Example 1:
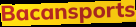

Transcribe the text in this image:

Bacansports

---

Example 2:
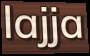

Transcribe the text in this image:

lajja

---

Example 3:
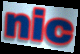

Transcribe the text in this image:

nic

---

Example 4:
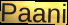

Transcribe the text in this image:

Paani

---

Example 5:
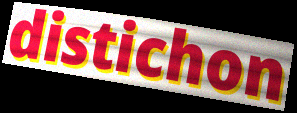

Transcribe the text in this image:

distichon